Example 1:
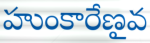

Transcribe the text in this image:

హుంకారేణౖవ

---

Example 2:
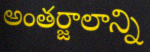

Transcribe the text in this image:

అంతర్జాలాన్ని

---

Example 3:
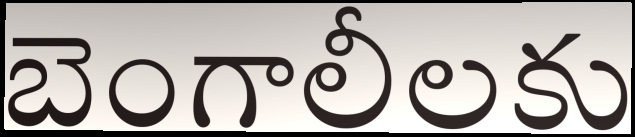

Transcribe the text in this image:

బెంగాలీలకు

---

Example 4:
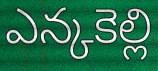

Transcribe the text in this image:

ఎన్కకెల్లి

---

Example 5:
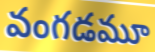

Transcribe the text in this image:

వంగడమూ